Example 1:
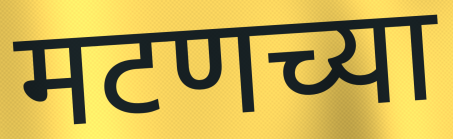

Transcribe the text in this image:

मटणच्या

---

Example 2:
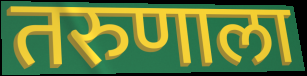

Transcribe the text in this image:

तरुणाला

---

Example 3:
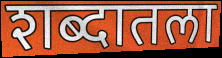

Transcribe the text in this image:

शब्दातला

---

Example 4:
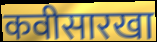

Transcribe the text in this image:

कवीसारखा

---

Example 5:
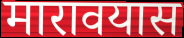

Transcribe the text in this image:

मारावयास